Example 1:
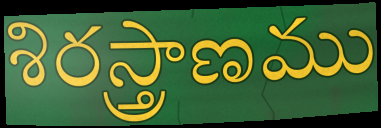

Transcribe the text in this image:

శిరస్త్రాణము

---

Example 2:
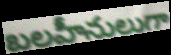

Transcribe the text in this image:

బలహీనులుగా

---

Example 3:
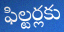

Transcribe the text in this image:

ఫిల్టర్లకు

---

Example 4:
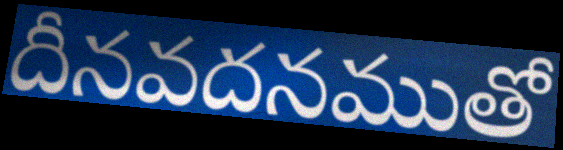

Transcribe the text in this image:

దీనవదనముతో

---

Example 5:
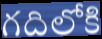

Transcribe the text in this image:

గదిలోకి